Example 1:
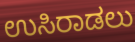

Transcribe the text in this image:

ಉಸಿರಾಡಲು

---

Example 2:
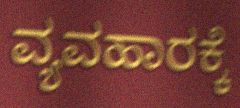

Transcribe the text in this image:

ವ್ಯವಹಾರಕ್ಕೆ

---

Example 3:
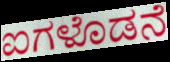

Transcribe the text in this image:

ಐಗಳೊಡನೆ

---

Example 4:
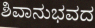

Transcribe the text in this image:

ಶಿವಾನುಭವದ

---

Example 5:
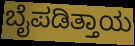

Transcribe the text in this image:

ಬೈಪಡಿತ್ತಾಯ